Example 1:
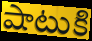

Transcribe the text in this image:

షాటుకి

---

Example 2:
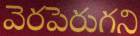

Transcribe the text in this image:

వెరపెరుగని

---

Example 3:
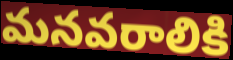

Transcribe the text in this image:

మనవరాలికి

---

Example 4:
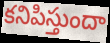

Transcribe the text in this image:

కనిపిస్తుందా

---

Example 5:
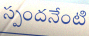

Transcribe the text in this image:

స్పందనేంటి